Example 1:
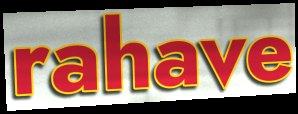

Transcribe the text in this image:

rahave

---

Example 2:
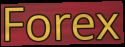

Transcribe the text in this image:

Forex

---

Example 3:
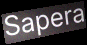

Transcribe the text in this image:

Sapera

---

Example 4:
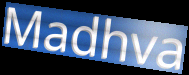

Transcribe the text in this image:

Madhva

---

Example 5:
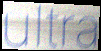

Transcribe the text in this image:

ultra